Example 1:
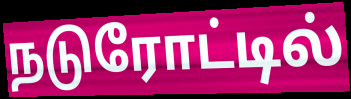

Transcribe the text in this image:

நடுரோட்டில்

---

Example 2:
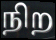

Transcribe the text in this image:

நிற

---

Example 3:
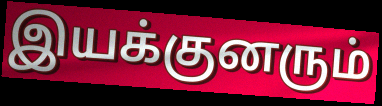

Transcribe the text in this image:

இயக்குனரும்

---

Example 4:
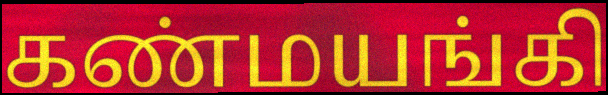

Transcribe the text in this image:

கண்மயங்கி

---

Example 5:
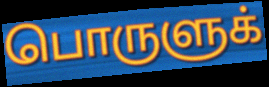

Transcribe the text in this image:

பொருளுக்